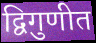
द्विगुणीत